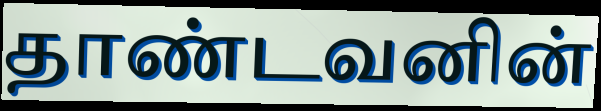
தாண்டவனின்